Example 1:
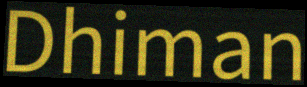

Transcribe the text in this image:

Dhiman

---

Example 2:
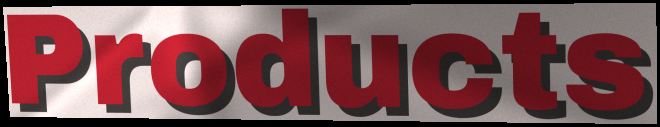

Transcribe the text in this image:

Products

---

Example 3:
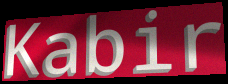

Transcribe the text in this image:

Kabir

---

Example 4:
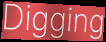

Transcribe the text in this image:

Digging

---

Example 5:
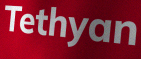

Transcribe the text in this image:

Tethyan